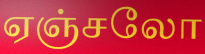
ஏஞ்சலோ